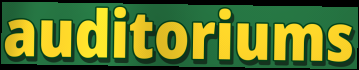
auditoriums